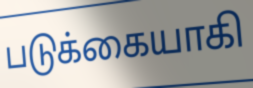
படுக்கையாகி